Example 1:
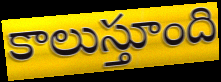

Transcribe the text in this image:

కాలుస్తూంది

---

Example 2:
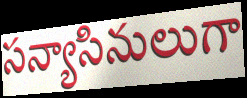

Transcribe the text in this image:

సన్యాసినులుగా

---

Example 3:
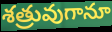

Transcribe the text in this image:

శత్రువుగానూ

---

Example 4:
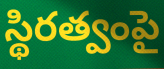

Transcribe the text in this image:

స్థిరత్వంపై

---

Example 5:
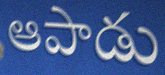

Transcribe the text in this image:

ఆపాడు